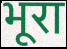
भूरा